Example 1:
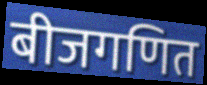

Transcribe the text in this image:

बीजगणित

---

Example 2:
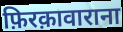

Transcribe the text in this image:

फ़िरक़ावाराना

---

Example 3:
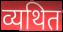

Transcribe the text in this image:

व्यथित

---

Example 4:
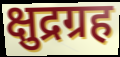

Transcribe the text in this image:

क्षुद्रग्रह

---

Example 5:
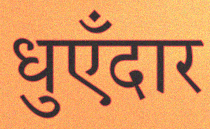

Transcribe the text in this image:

धुएँदार